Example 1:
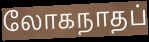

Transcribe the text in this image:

லோகநாதப்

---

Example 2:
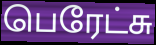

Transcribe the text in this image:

பெரேட்சு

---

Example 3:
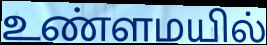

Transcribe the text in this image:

உண்ளமயில்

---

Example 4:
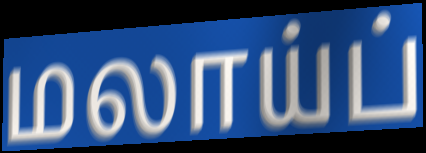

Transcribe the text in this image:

மலாய்ப்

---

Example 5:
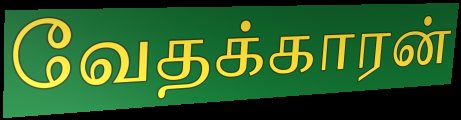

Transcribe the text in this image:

வேதக்காரன்